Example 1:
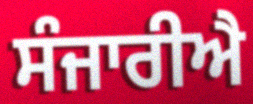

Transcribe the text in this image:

ਸੰਜਾਰੀਐ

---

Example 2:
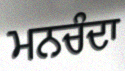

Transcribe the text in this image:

ਮਨਚੰਦਾ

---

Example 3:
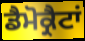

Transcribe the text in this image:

ਡੈਮੋਕ੍ਰੈਟਾਂ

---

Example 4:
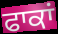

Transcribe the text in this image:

ਫਾਕਾਂ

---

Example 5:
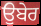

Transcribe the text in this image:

ਉਬੇਰ